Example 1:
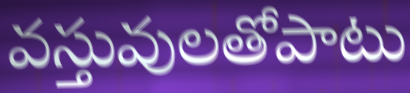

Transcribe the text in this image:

వస్తువులతోపాటు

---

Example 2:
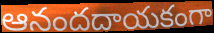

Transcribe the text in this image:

ఆనందదాయకంగా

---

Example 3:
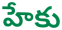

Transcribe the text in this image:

హేకు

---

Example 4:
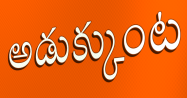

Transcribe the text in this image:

అడుక్కుంట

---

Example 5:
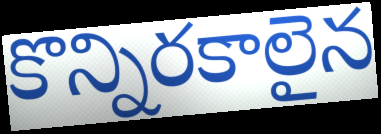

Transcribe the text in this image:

కొన్నిరకాలైన